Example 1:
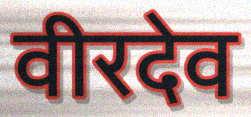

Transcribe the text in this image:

वीरदेव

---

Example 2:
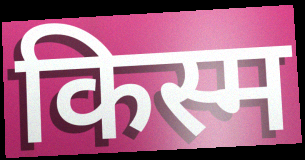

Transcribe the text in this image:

किस्म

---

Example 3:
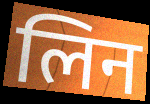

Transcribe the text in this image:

लिन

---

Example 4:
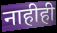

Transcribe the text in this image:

नाहीही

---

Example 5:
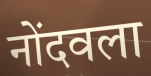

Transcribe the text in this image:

नोंदवला